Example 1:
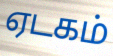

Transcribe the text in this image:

ஏடகம்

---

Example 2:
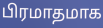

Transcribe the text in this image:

பிரமாதமாக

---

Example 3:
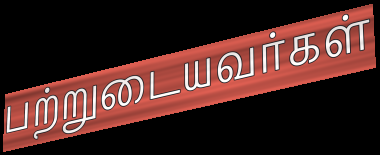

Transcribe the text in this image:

பற்றுடையவர்கள்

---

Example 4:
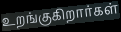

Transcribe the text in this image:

உறங்குகிறார்கள்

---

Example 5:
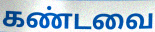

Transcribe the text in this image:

கண்டவை